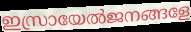
ഇസ്രായേൽജനങ്ങളേ